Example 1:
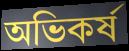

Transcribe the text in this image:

অভিকর্ষ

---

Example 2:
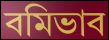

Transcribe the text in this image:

বমিভাব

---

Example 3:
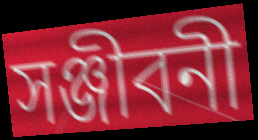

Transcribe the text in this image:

সঞ্জীবনী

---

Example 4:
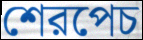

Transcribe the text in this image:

শেরপেচ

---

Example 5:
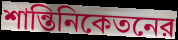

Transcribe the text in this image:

শান্তিনিকেতনের